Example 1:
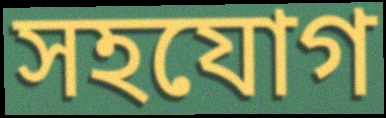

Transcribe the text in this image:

সহযোগ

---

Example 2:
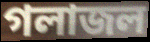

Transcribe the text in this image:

গলাজল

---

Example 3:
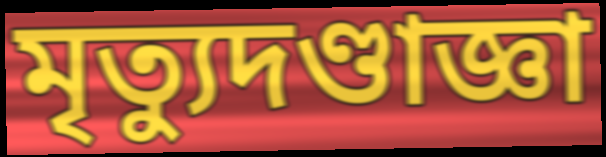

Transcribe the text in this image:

মৃত্যুদণ্ডাজ্ঞা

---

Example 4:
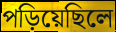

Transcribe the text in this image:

পড়িয়েছিলে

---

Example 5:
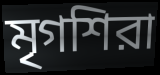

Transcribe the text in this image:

মৃগশিরা